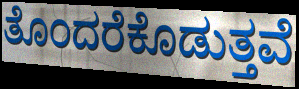
ತೊಂದರೆಕೊಡುತ್ತವೆ